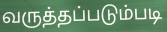
வருத்தப்படும்படி